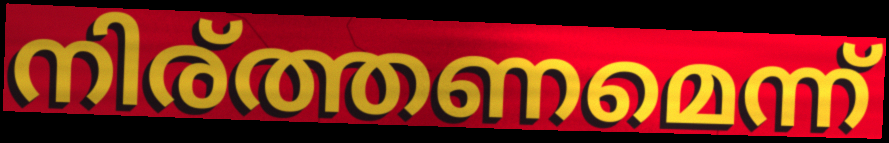
നിര്ത്തണമെന്ന്